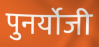
पुनर्योजी